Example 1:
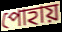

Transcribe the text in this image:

পোহায়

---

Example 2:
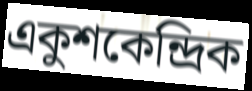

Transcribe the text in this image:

একুশকেন্দ্রিক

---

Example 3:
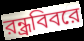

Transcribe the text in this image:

রন্ধ্রবিবরে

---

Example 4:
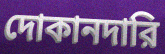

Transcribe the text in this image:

দোকানদারি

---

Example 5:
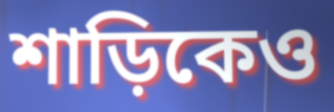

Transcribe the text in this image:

শাড়িকেও